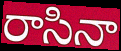
రాసినా